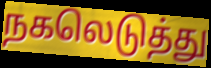
நகலெடுத்து